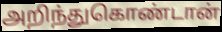
அறிந்துகொண்டான்